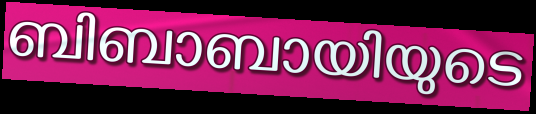
ബിബാബായിയുടെ